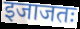
इजाजतः